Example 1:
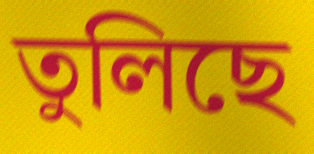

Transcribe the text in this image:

তুলিছে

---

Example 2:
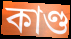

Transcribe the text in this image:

কাণ্ড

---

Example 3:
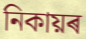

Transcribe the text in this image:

নিকায়ৰ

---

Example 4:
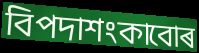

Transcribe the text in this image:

বিপদাশংকাবোৰ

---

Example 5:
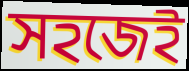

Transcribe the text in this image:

সহজেই